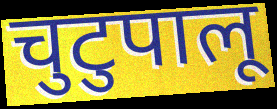
चुटुपालू